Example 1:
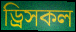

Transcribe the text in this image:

ড্রিসকল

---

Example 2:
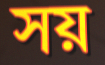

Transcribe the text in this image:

সয়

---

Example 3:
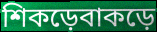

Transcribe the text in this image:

শিকড়েবাকড়ে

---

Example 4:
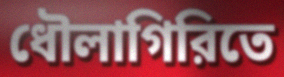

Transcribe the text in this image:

ধৌলাগিরিতে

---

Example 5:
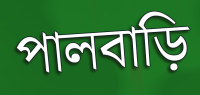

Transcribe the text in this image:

পালবাড়ি